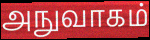
அநுவாகம்